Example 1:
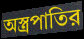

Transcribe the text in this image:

অস্ত্রপাতির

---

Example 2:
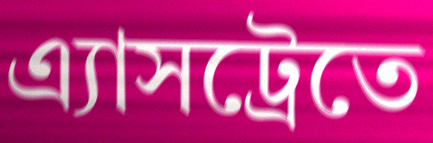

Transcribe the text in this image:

এ্যাসট্রেতে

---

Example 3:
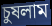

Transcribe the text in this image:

চুষলাম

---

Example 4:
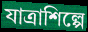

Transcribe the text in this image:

যাত্রাশিল্পে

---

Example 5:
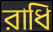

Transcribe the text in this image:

রাধি